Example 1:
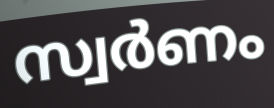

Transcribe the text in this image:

സ്വർണം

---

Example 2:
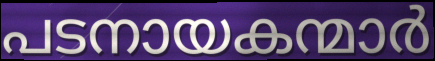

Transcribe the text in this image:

പടനായകന്മാർ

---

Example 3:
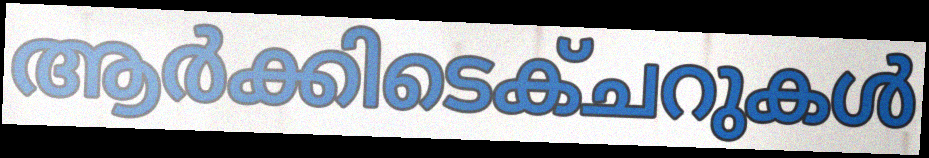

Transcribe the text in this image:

ആർക്കിടെക്ചറുകൾ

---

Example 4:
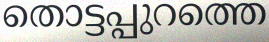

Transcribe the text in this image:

തൊട്ടപ്പുറത്തെ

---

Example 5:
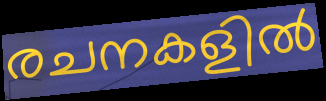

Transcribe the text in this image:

രചനകളിൽ